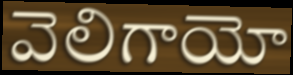
వెలిగాయో